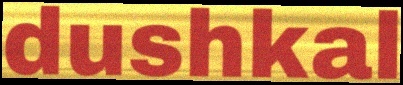
dushkal